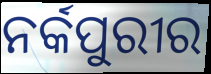
ନର୍କପୁରୀର